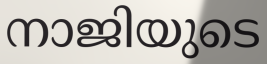
നാജിയുടെ